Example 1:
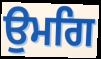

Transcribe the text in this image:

ਉਮਗਿ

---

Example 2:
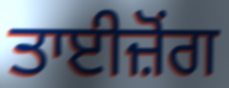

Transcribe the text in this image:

ਤਾਈਜ਼ੋਂਗ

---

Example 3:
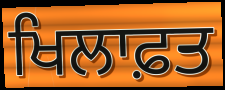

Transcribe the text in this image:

ਖਿਲਾਫ਼ਤ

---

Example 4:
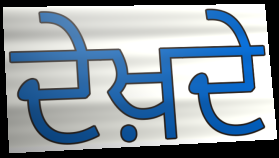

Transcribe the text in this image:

ਦੇਖ਼ਦੇ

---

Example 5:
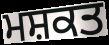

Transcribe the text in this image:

ਮਸ਼ਕਤ